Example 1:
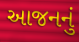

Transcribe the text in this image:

આજનનું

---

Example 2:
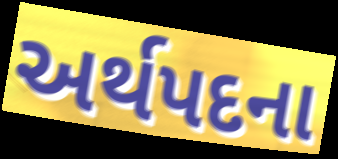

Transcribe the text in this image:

અર્થપદના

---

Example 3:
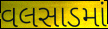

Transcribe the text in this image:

વલસાડમાં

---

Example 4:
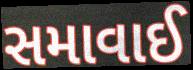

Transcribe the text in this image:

સમાવાઈ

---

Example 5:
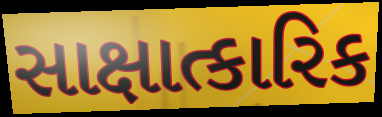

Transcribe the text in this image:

સાક્ષાત્કારિક